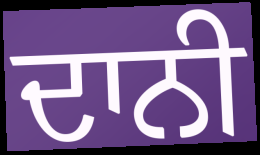
ਦਾਨੀ